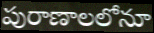
పురాణాలలోనూ